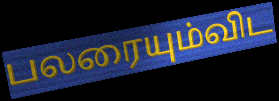
பலரையும்விட